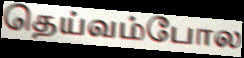
தெய்வம்போல